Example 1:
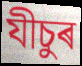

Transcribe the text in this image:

যীচুৰ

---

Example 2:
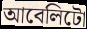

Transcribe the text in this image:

আবেলিটো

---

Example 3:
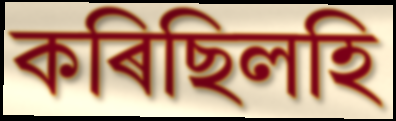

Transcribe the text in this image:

কৰিছিলহি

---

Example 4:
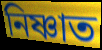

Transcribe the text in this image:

নিষ্ণাত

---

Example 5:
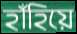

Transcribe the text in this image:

হাঁহিয়ে